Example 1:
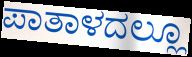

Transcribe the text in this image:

ಪಾತಾಳದಲ್ಲೂ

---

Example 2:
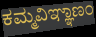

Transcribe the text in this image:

ಕಮ್ಮವಿಞ್ಞಾಣಂ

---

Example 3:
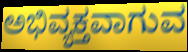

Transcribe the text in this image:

ಅಭಿವ್ಯಕ್ತವಾಗುವ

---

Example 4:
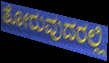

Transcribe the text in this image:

ತೋರುವುದರಲ್ಲಿ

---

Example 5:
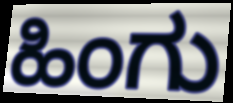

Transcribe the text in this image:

ಹಿಂಗು